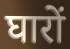
घारों